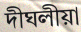
দীঘলীয়া